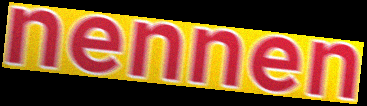
nennen